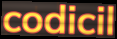
codicil